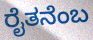
ರೈತನೆಂಬ